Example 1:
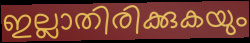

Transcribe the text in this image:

ഇല്ലാതിരിക്കുകയും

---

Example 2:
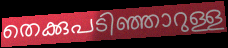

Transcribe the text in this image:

തെക്കുപടിഞ്ഞാറുള്ള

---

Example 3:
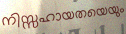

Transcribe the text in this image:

നിസ്സഹായതയെയും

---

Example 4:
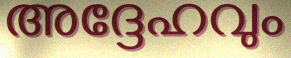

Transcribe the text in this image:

അദ്ദേഹവും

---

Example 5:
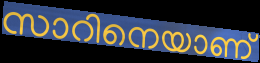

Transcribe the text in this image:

സാറിനെയാണ്